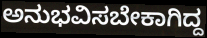
ಅನುಭವಿಸಬೇಕಾಗಿದ್ದ